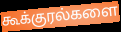
கூக்குரல்களை